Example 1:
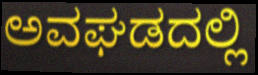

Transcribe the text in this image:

ಅವಘಡದಲ್ಲಿ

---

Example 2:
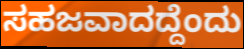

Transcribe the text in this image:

ಸಹಜವಾದದ್ದೆಂದು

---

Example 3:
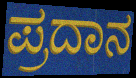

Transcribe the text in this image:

ಪ್ರದಾನ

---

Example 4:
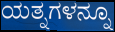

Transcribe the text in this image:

ಯತ್ನಗಳನ್ನೂ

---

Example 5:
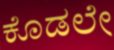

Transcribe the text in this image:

ಕೊಡಲೇ